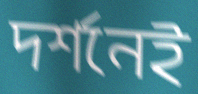
দর্শনেই